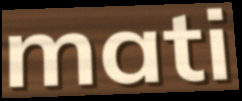
mati